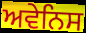
ਅਵੇਨਿਸ